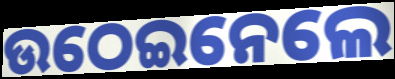
ଉଠେଇନେଲେ